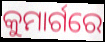
କୁମାର୍ଗରେ